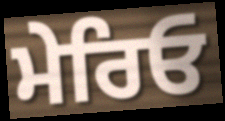
ਮੇਰਿਓ